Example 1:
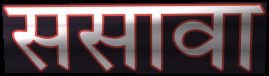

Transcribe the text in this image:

ससावा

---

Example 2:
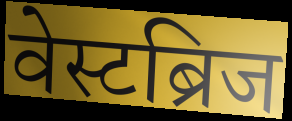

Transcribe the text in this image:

वेस्टब्रिज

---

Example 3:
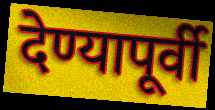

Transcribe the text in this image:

देण्यापूर्वी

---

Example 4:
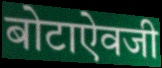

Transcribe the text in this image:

बोटाऐवजी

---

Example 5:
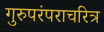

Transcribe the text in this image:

गुरुपरंपराचरित्र